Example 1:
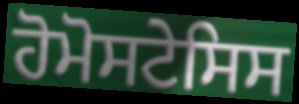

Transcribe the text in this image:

ਹੋਮੋਸਟੇਸਿਸ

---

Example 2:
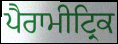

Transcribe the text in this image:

ਪੈਰਾਮੀਟ੍ਰਿਕ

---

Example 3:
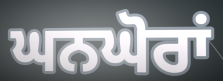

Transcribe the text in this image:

ਘਨਘੋਰਾਂ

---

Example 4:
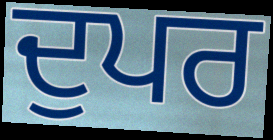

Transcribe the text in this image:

ਦੁਪਰ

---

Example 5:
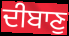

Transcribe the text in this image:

ਦੀਬਾਣੁ